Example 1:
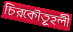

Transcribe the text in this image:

চিরকৌতূহলী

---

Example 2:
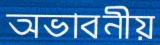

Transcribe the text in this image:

অভাবনীয়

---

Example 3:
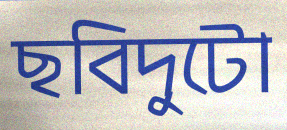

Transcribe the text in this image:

ছবিদুটো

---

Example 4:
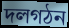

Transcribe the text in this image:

দলগঠন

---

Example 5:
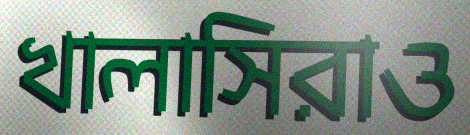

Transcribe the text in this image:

খালাসিরাও